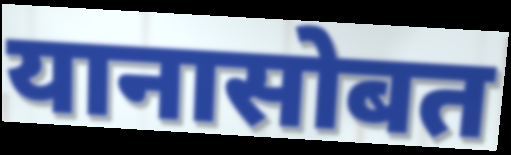
यानासोबत